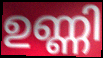
ഉണ്ണി